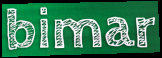
bimar